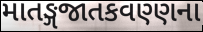
માતઙ્ગજાતકવણ્ણના